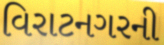
વિરાટનગરની